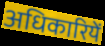
अधिकारियें